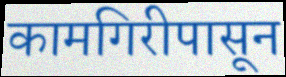
कामगिरीपासून